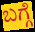
ಬಗ್ಗೆ